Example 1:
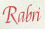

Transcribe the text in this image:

Rabri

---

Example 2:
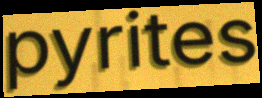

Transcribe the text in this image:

pyrites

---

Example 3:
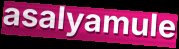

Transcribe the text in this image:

asalyamule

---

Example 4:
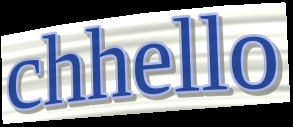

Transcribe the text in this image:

chhello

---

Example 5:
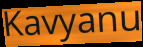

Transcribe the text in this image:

Kavyanu